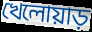
খেলোয়াড়